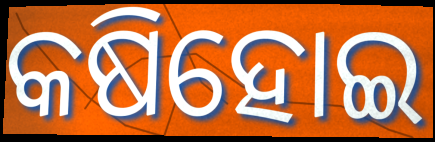
କଷିହୋଇ